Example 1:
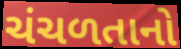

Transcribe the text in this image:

ચંચળતાનો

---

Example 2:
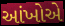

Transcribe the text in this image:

આંખોએ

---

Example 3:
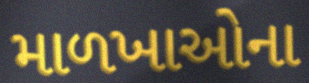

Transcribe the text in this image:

માળખાઓના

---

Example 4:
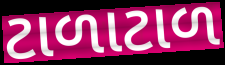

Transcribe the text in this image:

ટાળાટાળ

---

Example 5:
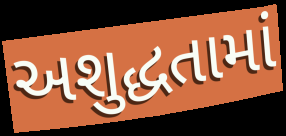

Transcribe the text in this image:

અશુદ્ધતામાં